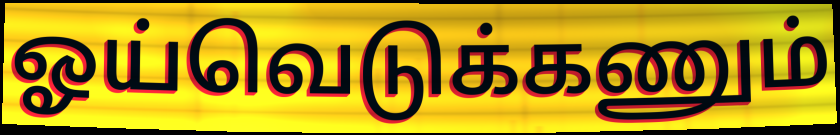
ஓய்வெடுக்கணும்